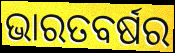
ଭାରତବର୍ଷର